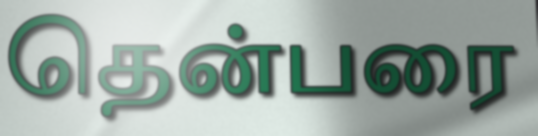
தென்பரை